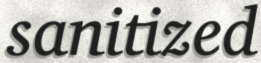
sanitized